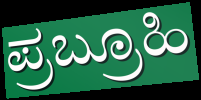
ಪ್ರಬ್ರೂಹಿ